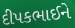
દીપકભાઈને